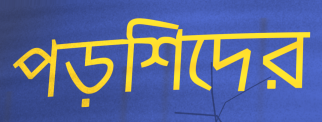
পড়শিদের